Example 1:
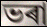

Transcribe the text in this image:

ভৰা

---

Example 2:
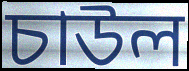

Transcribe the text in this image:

চাউল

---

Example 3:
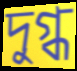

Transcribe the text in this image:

দুগ্ধ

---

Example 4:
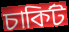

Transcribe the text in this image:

চাৰ্কিট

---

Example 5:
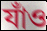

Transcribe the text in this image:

যাঁও